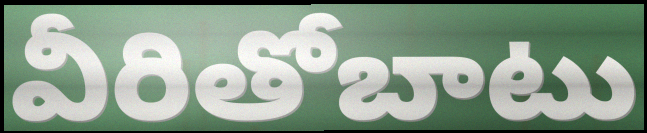
వీరితోబాటు